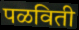
पळविती